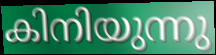
കിനിയുന്നു